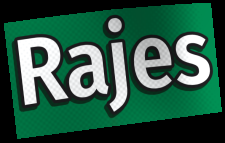
Rajes